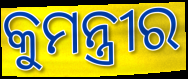
କୁମନ୍ତ୍ରୀର